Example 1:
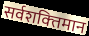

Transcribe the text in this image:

सर्वशक्‍तिमान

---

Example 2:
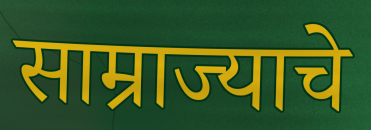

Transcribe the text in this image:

साम्राज्याचे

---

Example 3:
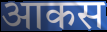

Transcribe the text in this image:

आकस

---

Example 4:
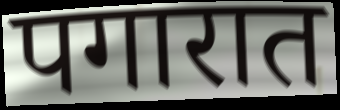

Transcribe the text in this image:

पगारात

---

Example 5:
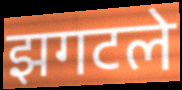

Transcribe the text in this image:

झगटले